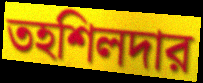
তহশিলদার